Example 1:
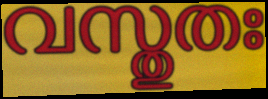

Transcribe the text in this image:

വസ്തുതഃ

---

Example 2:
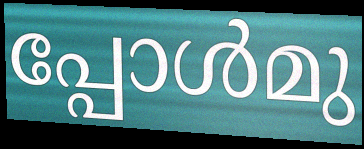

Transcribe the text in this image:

പ്പോൾമു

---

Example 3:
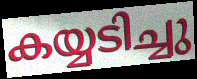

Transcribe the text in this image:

കയ്യടിച്ചു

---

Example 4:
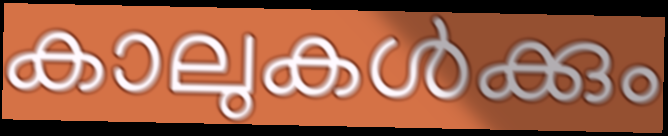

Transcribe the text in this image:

കാലുകൾക്കും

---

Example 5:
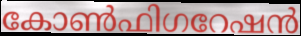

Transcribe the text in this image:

കോൺഫിഗറേഷൻ